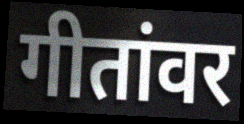
गीतांवर